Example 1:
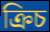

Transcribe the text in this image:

ক্রিচ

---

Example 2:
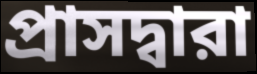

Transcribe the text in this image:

প্রাসদ্বারা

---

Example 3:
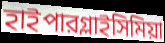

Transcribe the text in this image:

হাইপারগ্লাইসিমিয়া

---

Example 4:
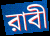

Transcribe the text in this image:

রাবী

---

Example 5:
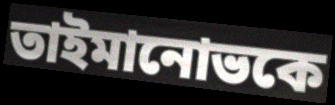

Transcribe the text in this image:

তাইমানোভকে